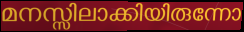
മനസ്സിലാക്കിയിരുന്നോ